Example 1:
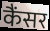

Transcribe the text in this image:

कैंसर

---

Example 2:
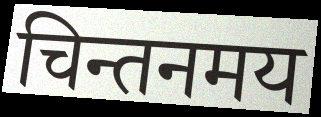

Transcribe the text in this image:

चिन्तनमय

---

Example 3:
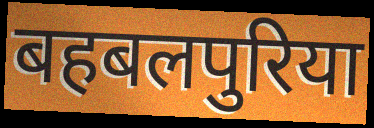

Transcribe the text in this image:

बहबलपुरिया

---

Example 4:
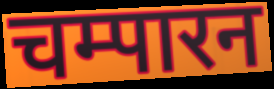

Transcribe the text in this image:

चम्पारन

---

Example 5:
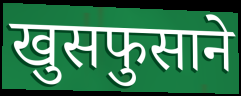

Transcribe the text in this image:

खुसफुसाने